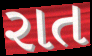
રાત